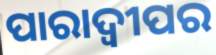
ପାରାଦ୍ବୀପର